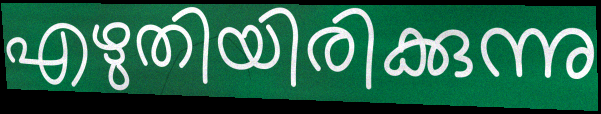
എഴുതിയിരിക്കുന്നു